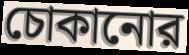
চোকানোর